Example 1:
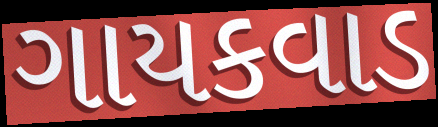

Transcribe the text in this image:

ગાયકવાડ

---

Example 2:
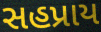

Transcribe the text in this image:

સહપ્રાય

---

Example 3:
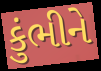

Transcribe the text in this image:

કુંભીને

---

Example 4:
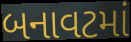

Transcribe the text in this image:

બનાવટમાં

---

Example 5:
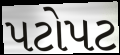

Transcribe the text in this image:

પટોપટ